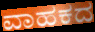
ವಾಹಕದ